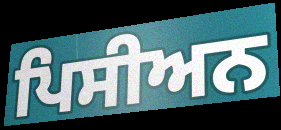
ਪਿਸੀਅਨ